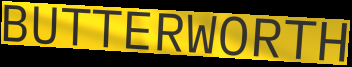
BUTTERWORTH